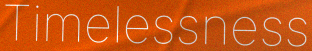
Timelessness